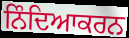
ਨਿੰਦਿਆਕਰਨ